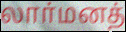
லார்மனத்